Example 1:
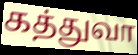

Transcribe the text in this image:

கத்துவா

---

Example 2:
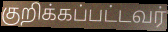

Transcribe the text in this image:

குறிக்கப்பட்டவர்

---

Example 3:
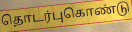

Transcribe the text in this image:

தொடர்புகொண்டு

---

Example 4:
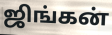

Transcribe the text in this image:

ஜிங்கன்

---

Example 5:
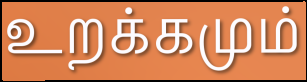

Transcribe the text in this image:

உறக்கமும்